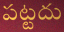
పట్టదు